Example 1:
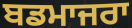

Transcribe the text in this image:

ਬਡਮਾਜਰਾ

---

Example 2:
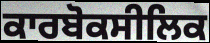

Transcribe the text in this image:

ਕਾਰਬੋਕਸੀਲਿਕ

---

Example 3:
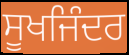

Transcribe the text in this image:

ਸੂਖਜਿੰਦਰ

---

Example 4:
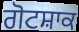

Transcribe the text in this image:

ਗੋਟਸ਼ਾਕ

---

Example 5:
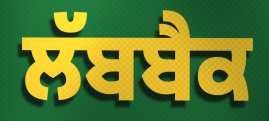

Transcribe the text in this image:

ਲੱਬਬੈਕ